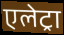
एलेट्रा